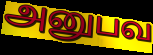
அனுபவ